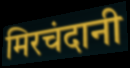
मिरचंदानी